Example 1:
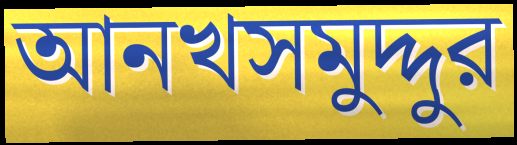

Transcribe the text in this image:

আনখসমুদ্দুর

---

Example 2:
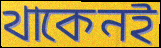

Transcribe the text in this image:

থাকেনই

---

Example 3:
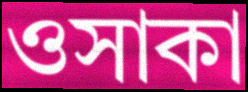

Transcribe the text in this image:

ওসাকা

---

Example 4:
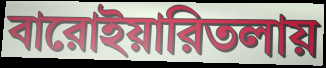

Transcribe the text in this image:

বারোইয়ারিতলায়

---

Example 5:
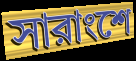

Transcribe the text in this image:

সারাংশে